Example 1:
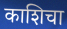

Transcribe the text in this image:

काशिचा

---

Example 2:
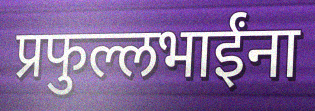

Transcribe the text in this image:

प्रफुल्लभाईंना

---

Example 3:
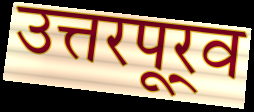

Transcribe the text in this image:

उत्तरपूर्व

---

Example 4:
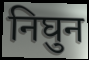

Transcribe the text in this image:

निघुन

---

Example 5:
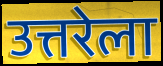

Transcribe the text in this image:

उत्तरेला